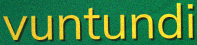
vuntundi